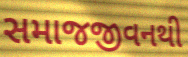
સમાજજીવનથી